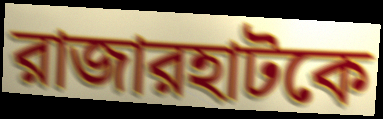
রাজারহাটকে